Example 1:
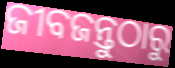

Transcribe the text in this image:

ଜୀବଜନ୍ତୁଠାରୁ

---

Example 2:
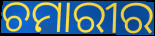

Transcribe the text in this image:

ଚମାରୀର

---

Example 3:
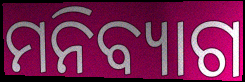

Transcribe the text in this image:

ମନିବ୍ୟାଗ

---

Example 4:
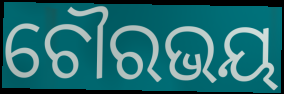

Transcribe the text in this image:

ଚୌରଭୟ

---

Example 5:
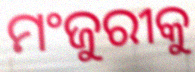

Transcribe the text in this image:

ମଂଜୁରୀକୁ